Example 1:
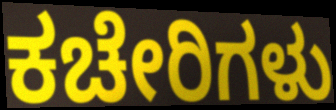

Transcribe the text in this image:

ಕಚೇರಿಗಳು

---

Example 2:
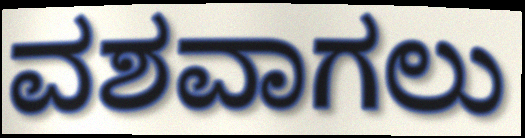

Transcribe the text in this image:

ವಶವಾಗಲು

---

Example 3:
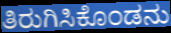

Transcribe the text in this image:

ತಿರುಗಿಸಿಕೊಂಡನು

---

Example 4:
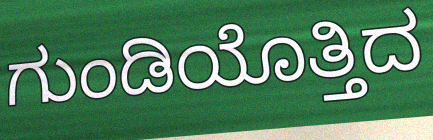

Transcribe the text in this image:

ಗುಂಡಿಯೊತ್ತಿದ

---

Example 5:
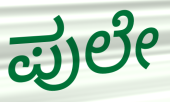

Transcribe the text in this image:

ಪುಲೇ